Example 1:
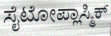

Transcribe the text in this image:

ಸೈಟೋಪ್ಲಾಸ್ಮಿಕ್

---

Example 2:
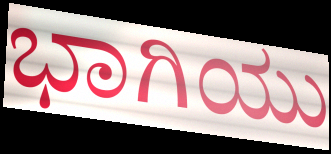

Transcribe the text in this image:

ಭಾಗಿಯು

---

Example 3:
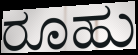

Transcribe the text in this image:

ರೂಹು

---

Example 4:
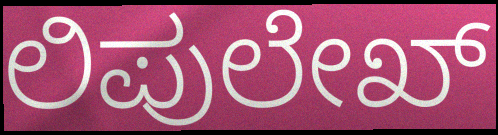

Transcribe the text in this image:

ಲಿಪುಲೇಖ್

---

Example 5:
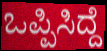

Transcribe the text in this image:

ಒಪ್ಪಿಸಿದ್ದೆ